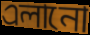
এলানো